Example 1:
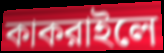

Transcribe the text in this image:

কাকরাইলে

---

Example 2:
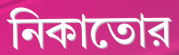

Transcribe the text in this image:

নিকাতোর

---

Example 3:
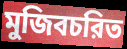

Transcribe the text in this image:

মুজিবচরিত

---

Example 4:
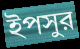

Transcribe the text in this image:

ইপসুর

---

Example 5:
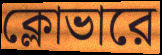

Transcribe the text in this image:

ক্লোভারে